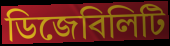
ডিজেবিলিটি